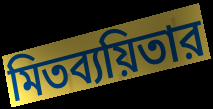
মিতব্যয়িতার